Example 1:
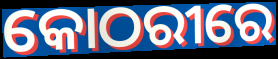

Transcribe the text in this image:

କୋଠରୀରେ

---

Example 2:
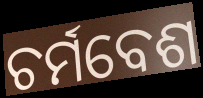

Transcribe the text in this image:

ଚର୍ମବେଶ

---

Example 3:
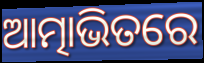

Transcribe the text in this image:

ଆତ୍ମାଭିତରେ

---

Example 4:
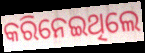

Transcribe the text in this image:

କରିନେଇଥିଲେ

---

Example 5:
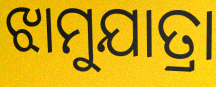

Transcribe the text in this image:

ଝାମୁଯାତ୍ରା